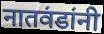
नातवंडांनी